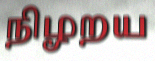
நிழறய